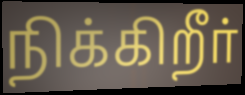
நிக்கிறீர்